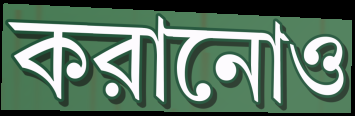
করানোও